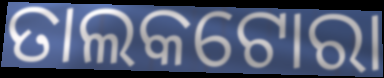
ତାଲକଟୋରା